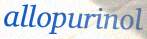
allopurinol